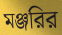
মঞ্জরির